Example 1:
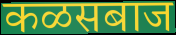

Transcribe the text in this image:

कळसबाज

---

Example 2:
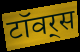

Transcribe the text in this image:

टॉवर्स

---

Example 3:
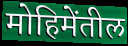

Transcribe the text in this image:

मोहिमेंतील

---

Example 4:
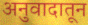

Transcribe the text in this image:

अनुवादातून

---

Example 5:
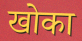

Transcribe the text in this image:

खोका